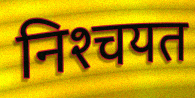
निश्चयत